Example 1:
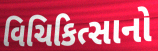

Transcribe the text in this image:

વિચિકિત્સાનો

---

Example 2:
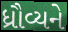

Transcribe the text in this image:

ધ્રૌવ્યને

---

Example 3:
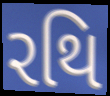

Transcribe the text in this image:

રથિ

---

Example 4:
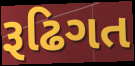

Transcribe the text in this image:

રૂઢિગત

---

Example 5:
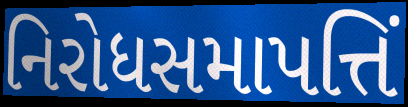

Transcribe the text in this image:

નિરોધસમાપત્તિં